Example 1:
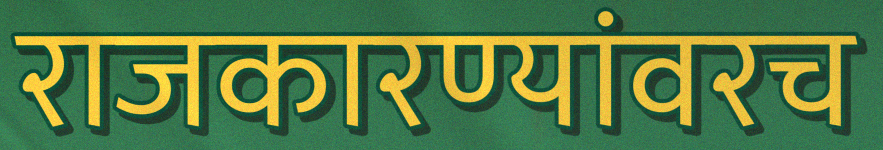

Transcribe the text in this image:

राजकारण्यांवरच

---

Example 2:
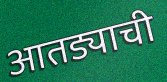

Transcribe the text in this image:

आतड्याची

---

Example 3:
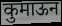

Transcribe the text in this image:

कुमाऊन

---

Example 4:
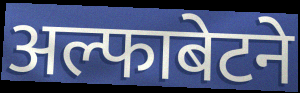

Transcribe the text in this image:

अल्फाबेटने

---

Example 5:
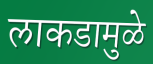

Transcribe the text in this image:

लाकडामुळे